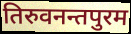
तिरुवनन्तपुरम